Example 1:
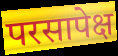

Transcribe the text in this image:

परसापेक्ष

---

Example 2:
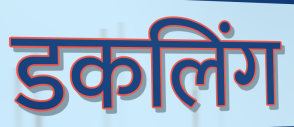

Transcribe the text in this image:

डकलिंग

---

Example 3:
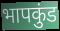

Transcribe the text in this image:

भापकुंड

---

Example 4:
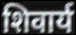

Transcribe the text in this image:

शिवार्य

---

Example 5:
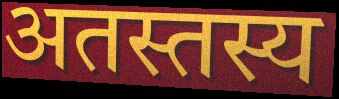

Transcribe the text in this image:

अतस्तस्य